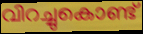
വിറച്ചുകൊണ്ട്